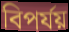
বিপর্যয়